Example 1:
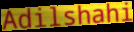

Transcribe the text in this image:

Adilshahi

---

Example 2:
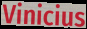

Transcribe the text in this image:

Vinicius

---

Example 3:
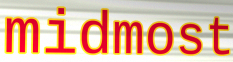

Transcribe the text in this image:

midmost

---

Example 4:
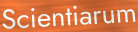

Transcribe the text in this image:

Scientiarum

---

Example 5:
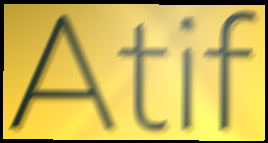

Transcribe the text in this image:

Atif